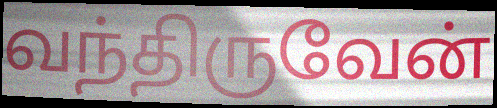
வந்திருவேன்